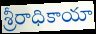
శ్రీరాధికాయా